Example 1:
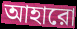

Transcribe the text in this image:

আহারো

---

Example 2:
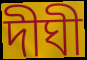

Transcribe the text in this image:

দীঘী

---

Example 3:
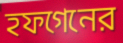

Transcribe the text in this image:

হফগেনের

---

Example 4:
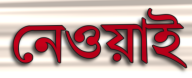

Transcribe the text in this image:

নেওয়াই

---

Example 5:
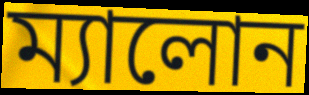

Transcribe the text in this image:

ম্যালোন